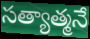
సత్యాత్మనే